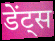
डेंट्स